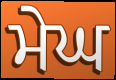
ਮੇਘ